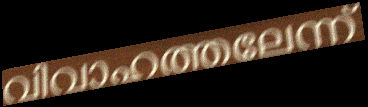
വിവാഹത്തലേന്ന്